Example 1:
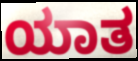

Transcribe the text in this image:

ಯಾತ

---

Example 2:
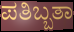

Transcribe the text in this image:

ಪತಿಬ್ಬತಾ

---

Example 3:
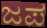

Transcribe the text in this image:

ಜಪ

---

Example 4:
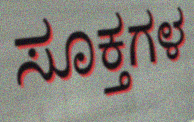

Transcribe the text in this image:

ಸೂಕ್ತಗಳ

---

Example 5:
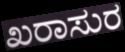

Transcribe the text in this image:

ಖರಾಸುರ